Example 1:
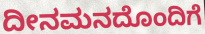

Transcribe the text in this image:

ದೀನಮನದೊಂದಿಗೆ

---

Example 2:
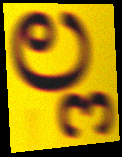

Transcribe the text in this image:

ಲ್ಲ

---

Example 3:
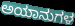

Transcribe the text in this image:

ಅಯಾನುಗಳ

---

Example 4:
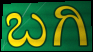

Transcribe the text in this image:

ಬಗಿ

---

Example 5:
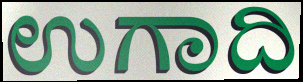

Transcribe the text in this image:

ಉಗಾದಿ